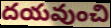
దయవుంచి